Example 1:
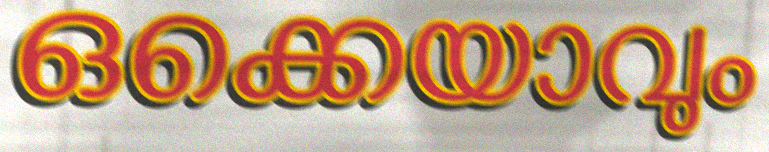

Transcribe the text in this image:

ഒക്കെയാവും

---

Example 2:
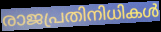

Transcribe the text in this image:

രാജപ്രതിനിധികൾ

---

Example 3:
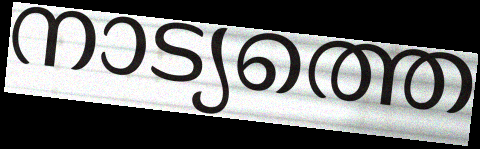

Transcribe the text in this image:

നാട്യത്തെ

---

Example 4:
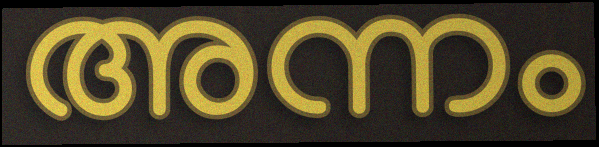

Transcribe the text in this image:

അന്നം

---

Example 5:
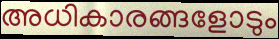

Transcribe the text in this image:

അധികാരങ്ങളോടും